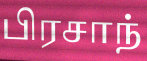
பிரசாந்